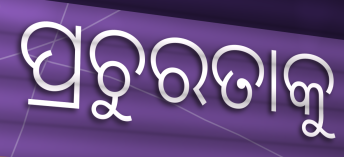
ପ୍ରଚୁରତାକୁ